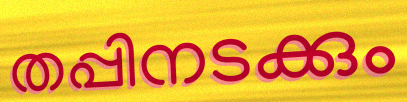
തപ്പിനടക്കും